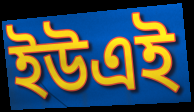
ইউএই